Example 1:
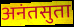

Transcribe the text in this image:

अनंतसुता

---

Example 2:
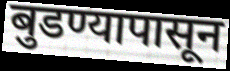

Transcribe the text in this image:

बुडण्यापासून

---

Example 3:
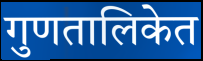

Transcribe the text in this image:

गुणतालिकेत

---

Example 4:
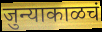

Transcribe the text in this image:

जुन्याकाळचं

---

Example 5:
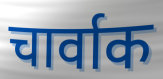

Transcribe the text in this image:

चार्वाक